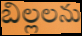
బిల్లలను